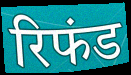
रिफंड